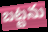
బట్టను